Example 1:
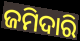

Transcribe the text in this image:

ଜମିଦାରି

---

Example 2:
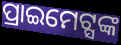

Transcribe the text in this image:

ପ୍ରାଇମେଟ୍ସଙ୍କ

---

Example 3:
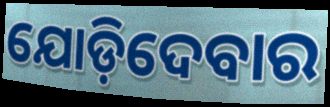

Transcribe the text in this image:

ଯୋଡ଼ିଦେବାର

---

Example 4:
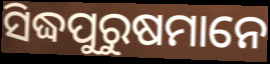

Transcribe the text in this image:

ସିଦ୍ଧପୁରୁଷମାନେ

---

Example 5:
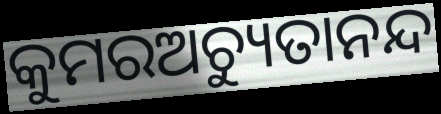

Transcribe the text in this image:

କୁମରଅଚ୍ୟୁତାନନ୍ଦ